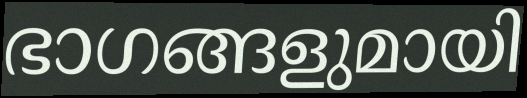
ഭാഗങ്ങളുമായി